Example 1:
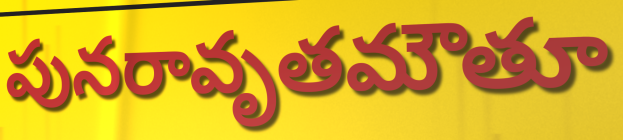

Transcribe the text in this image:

పునరావృతమౌతూ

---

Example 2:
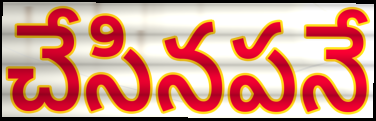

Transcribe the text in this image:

చేసినపనే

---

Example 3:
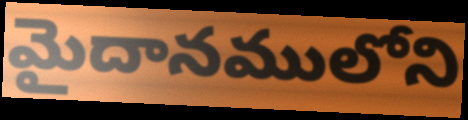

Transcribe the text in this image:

మైదానములోని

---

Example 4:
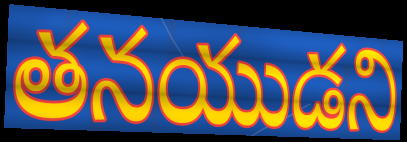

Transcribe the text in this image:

తనయుడని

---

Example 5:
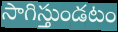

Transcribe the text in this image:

సాగిస్తుండటం